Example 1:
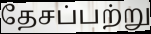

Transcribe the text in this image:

தேசப்பற்று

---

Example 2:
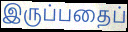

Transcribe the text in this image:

இருப்பதைப்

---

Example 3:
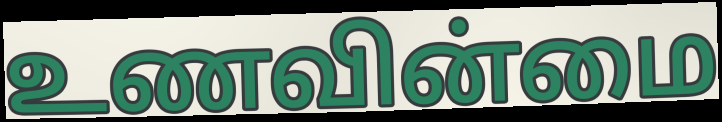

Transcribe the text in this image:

உணவின்மை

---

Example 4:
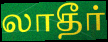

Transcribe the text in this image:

லாதீர்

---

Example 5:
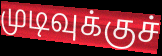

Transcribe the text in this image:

முடிவுக்குச்